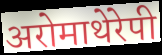
अरोमाथेरेपी